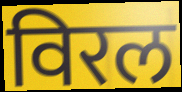
विरल